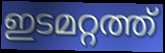
ഇടമറ്റത്ത്